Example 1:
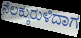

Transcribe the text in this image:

ನೆಲಕ್ಕುರುಳಿದಾಗ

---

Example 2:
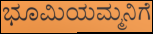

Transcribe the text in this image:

ಭೂಮಿಯಮ್ಮನಿಗೆ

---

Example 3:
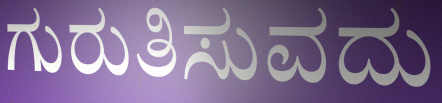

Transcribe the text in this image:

ಗುರುತಿಸುವದು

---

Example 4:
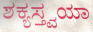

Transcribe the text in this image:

ಶಕ್ಯಸ್ತ್ವಯಾ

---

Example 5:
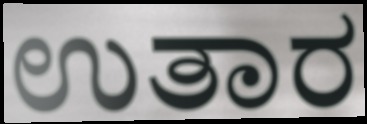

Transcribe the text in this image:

ಉತಾರ